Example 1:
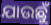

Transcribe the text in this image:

ଯାଉଛୁଁ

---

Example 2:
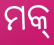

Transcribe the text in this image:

ମକ୍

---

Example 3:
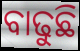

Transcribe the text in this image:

ବାଢୁଛି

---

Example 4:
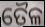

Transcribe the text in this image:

ତୈଳ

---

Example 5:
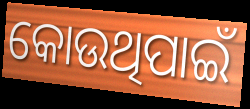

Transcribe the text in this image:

କୋଉଥିପାଇଁ